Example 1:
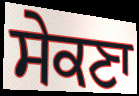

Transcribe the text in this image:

ਸੇਕਣਾ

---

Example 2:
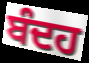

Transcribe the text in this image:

ਬੰਦਹ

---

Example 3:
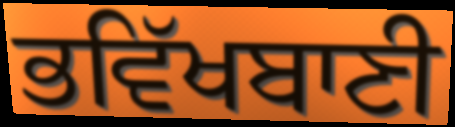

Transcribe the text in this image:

ਭਵਿੱਖਬਾਣੀ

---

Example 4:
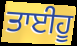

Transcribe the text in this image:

ਤਾਈਹੂ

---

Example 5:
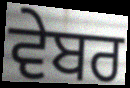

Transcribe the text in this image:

ਵੇਬਰ